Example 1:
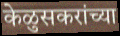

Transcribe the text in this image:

केळुसकरांच्या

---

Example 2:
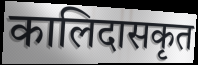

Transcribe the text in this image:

कालिदासकृत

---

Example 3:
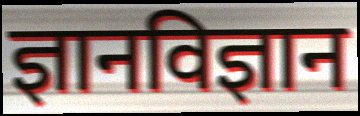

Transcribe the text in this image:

ज्ञानविज्ञान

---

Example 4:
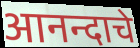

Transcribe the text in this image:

आनन्दाचे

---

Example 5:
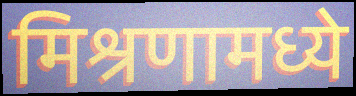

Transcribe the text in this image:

मिश्रणामध्ये